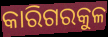
କାରିଗରକୁଳ